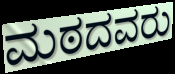
ಮಠದವರು